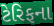
ટેરિફના